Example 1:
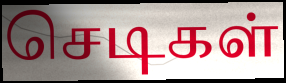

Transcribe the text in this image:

செடிகள்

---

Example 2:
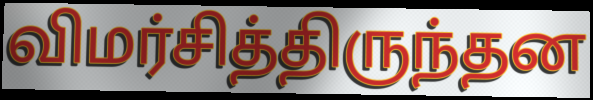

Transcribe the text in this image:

விமர்சித்திருந்தன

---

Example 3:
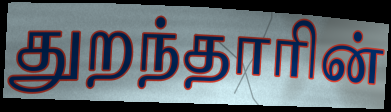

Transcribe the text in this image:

துறந்தாரின்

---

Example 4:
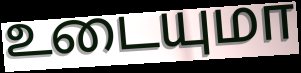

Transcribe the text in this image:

உடையுமா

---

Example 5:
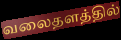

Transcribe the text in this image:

வலைதளத்தில்